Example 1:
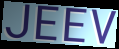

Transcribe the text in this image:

JEEV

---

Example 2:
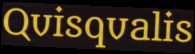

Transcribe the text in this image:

Quisqualis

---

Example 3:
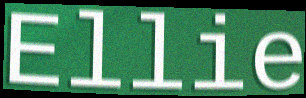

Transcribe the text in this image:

Ellie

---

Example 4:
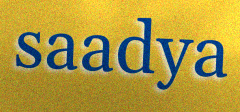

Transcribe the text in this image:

saadya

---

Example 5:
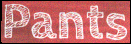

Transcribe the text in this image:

Pants